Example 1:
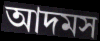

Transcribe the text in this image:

আদমস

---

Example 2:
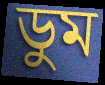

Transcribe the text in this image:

ডুম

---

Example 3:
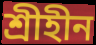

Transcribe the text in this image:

শ্রীহীন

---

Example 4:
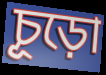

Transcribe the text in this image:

চূড়ো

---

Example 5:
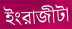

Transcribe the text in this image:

ইংরাজীটা